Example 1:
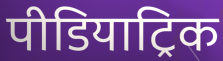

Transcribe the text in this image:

पीडियाट्रिक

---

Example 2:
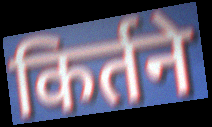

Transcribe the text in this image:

किर्तने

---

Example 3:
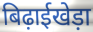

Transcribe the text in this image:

बिढ़ाईखेड़ा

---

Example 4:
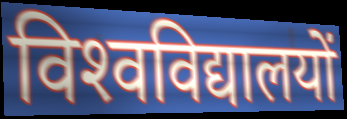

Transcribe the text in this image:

विश्‍वविद्यालयों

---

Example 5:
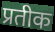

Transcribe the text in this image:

प्रतीक